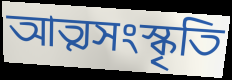
আত্মসংস্কৃতি